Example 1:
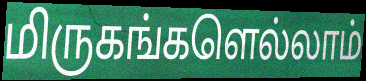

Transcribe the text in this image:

மிருகங்களெல்லாம்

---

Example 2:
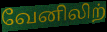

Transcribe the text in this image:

வேனிலிற்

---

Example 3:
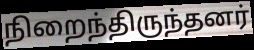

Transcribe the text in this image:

நிறைந்திருந்தனர்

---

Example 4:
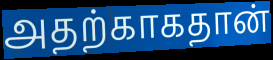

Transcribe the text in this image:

அதற்காகதான்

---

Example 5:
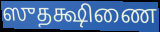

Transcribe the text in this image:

ஸுதக்ஷிணை